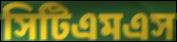
সিটিএমএস